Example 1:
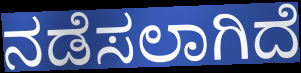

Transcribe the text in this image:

ನಡೆಸಲಾಗಿದೆ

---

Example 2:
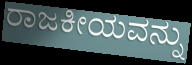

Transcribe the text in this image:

ರಾಜಕೀಯವನ್ನು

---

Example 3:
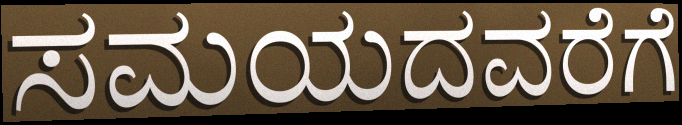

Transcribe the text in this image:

ಸಮಯದವರೆಗೆ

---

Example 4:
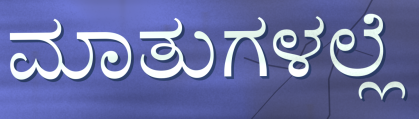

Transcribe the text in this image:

ಮಾತುಗಳಲ್ಲೆ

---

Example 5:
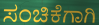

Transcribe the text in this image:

ಸಂಚಿಕೆಗಾಗಿ